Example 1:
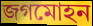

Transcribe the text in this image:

জগমোহন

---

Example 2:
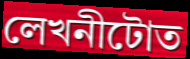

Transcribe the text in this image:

লেখনীটোত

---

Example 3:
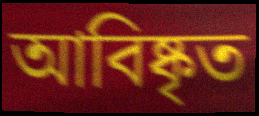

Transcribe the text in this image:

আবিষ্কৃত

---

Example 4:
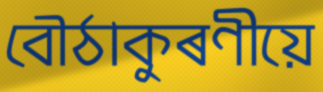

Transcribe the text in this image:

বৌঠাকুৰণীয়ে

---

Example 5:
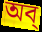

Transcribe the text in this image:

অব্